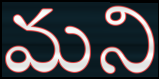
మని